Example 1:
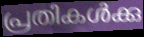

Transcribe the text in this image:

പ്രതികൾക്കു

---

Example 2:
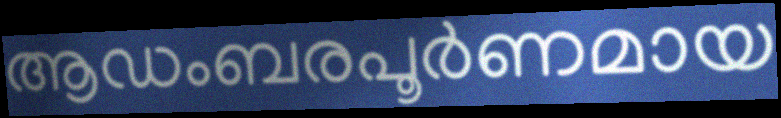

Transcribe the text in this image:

ആഡംബരപൂർണമായ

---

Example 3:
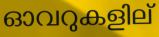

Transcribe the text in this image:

ഓവറുകളില്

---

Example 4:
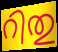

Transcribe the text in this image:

റിതു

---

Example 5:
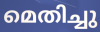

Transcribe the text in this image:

മെതിച്ചു